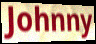
Johnny